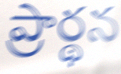
ప్రార్థన